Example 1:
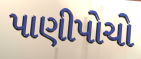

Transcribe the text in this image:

પાણીપોચો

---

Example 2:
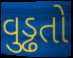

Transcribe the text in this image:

વુડ્ઢતો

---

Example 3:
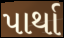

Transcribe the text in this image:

પાર્થા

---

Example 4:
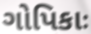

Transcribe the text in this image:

ગોપિકાઃ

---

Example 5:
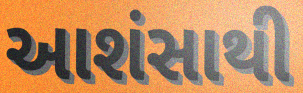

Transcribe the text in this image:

આશંસાથી